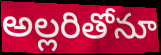
అల్లరితోనూ